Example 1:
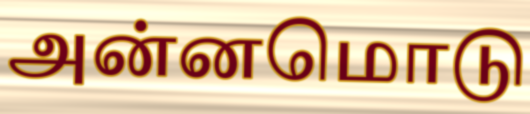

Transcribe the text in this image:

அன்னமொடு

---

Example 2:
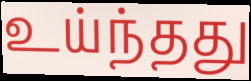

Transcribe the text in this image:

உய்ந்தது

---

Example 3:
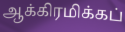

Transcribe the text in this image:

ஆக்கிரமிக்கப்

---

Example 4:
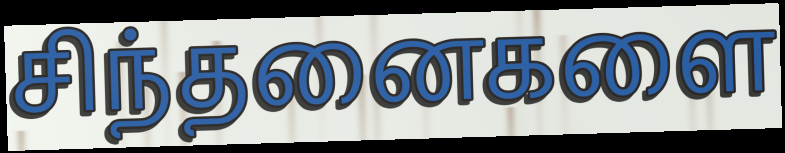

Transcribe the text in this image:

சிந்தனைகளை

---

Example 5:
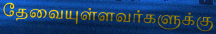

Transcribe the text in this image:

தேவையுள்ளவர்களுக்கு